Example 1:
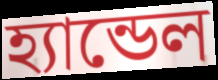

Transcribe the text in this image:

হ্যান্ডেল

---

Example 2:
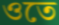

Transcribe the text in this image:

ওতে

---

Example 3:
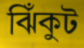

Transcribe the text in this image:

ঝিঁকুট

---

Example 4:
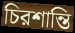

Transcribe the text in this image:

চিরশান্তি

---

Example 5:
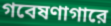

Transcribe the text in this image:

গবেষণাগারে